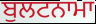
ਬੁਲਟਨਾਮਾ